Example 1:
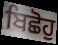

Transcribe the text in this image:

ਬਿਛੋਹੁ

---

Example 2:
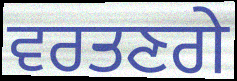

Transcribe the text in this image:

ਵਰਤਣਗੇ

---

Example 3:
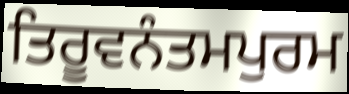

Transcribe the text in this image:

ਤਿਰੂਵਨੰਤਮਪੁਰਮ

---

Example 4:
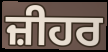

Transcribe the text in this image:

ਜ਼ੀਹਰ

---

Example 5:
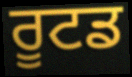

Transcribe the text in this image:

ਰੂਟਡ